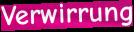
Verwirrung